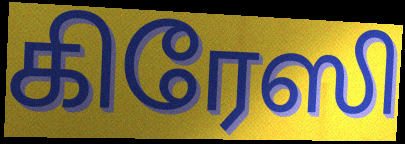
கிரேஸி